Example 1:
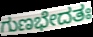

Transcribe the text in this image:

ಗುಣಭೇದತಃ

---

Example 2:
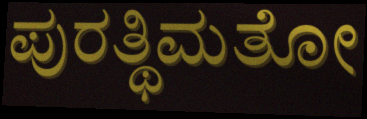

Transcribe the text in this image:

ಪುರತ್ಥಿಮತೋ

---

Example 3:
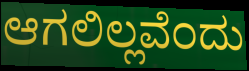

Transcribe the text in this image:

ಆಗಲಿಲ್ಲವೆಂದು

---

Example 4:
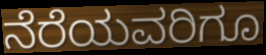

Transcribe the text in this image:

ನೆರೆಯವರಿಗೂ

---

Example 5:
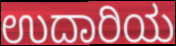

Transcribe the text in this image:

ಉದಾರಿಯ